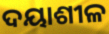
ଦୟାଶୀଳ